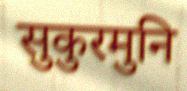
सुकुरमुनि